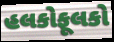
હલકોફૂલકો